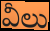
వీలు